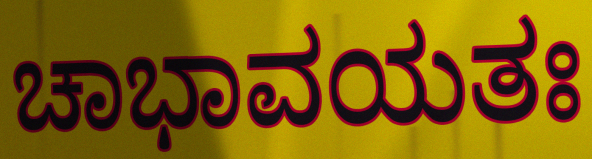
ಚಾಭಾವಯತಃ